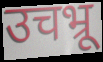
उचभ्रू